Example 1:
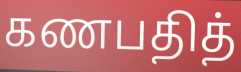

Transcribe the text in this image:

கணபதித்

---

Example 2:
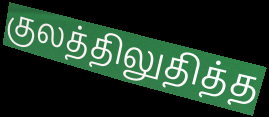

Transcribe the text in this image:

குலத்திலுதித்த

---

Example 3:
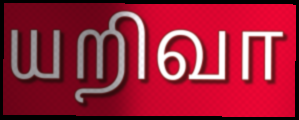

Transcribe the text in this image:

யறிவா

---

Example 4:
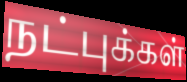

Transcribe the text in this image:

நட்புக்கள்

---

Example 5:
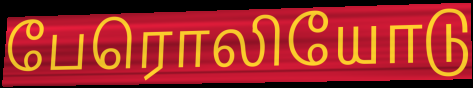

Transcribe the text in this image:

பேரொலியோடு